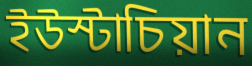
ইউস্টাচিয়ান